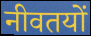
नीवतयों